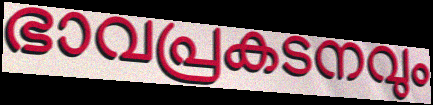
ഭാവപ്രകടനവും